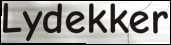
Lydekker